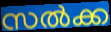
സൽക്ക